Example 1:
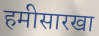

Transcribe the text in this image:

हमीसारखा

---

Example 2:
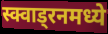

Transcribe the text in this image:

स्क्वाड्रनमध्ये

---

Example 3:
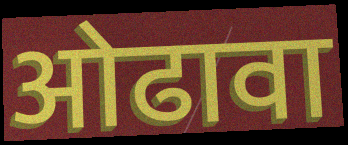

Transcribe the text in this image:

ओढावा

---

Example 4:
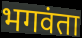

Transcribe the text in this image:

भगवंता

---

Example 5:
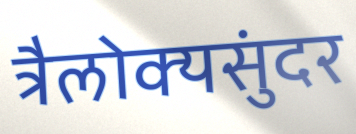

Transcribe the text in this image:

त्रैलोक्यसुंदर